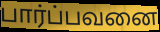
பார்ப்பவனை